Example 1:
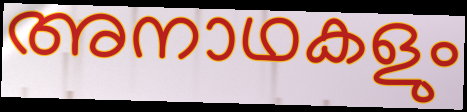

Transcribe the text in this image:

അനാഥകളും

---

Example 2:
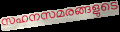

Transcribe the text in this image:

സഹനസമരങ്ങളുടെ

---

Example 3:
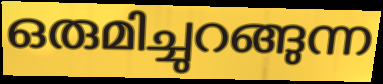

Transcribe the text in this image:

ഒരുമിച്ചുറങ്ങുന്ന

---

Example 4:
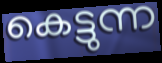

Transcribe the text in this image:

കെട്ടുന്ന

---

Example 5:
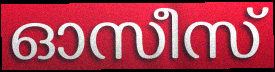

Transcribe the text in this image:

ഓസീസ്